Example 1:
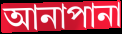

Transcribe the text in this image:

আনাপানা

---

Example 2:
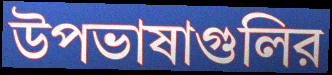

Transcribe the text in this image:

উপভাষাগুলির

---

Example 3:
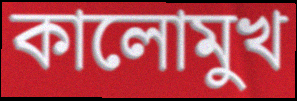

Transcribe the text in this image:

কালোমুখ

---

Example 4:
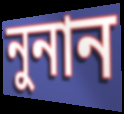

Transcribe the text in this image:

নুনান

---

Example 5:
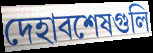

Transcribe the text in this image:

দেহাবশেষগুলি